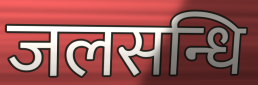
जलसन्धि